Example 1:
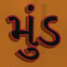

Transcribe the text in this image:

મુંડ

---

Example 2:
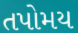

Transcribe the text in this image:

તપોમય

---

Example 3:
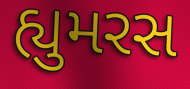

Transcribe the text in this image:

હ્યુમરસ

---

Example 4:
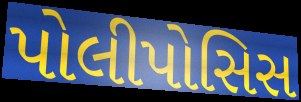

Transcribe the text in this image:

પોલીપોસિસ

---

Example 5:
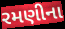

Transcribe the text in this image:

રમણીના